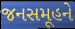
જનસમૂહને